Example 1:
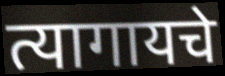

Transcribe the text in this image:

त्यागायचे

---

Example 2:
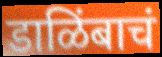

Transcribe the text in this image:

डाळिंबाचं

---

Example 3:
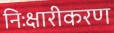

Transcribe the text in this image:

निःक्षारीकरण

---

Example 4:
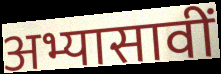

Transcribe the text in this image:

अभ्यासावीं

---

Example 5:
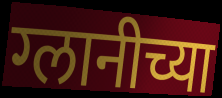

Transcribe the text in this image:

ग्लानीच्या